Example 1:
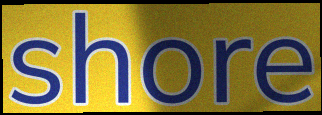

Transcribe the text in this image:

shore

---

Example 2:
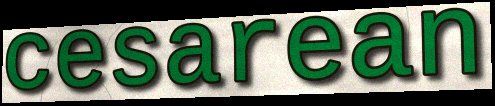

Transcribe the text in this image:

cesarean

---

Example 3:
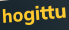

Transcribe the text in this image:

hogittu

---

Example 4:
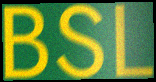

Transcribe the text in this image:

BSL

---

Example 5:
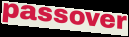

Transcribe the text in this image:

passover